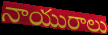
నాయురాలు